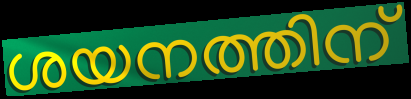
ശയനത്തിന്